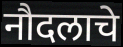
नौदलाचे